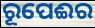
ରୂପେଈର